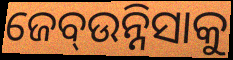
ଜେବ୍ଉନ୍ନିସାକୁ